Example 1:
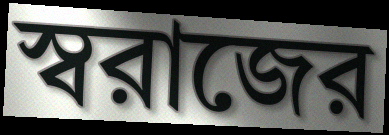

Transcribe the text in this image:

স্বরাজের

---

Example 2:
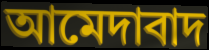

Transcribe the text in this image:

আমেদাবাদ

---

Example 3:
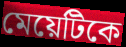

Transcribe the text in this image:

মেয়েটিকে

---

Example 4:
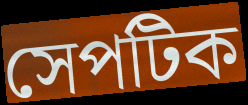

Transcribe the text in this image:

সেপটিক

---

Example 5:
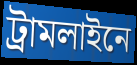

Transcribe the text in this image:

ট্রামলাইনে